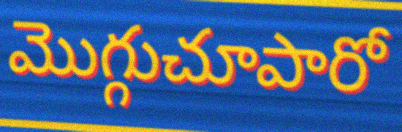
మొగ్గుచూపారో